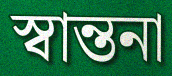
স্বান্তনা